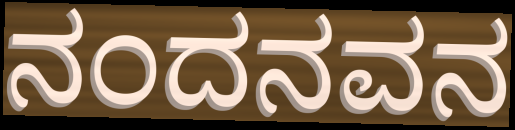
ನಂದನವನ